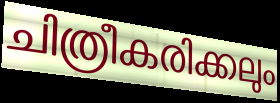
ചിത്രീകരിക്കലും